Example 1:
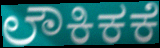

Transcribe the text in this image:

ಲೌಕಿಕಕೆ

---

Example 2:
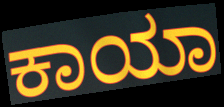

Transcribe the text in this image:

ಕಾಯಾ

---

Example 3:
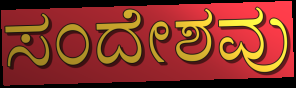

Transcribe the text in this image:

ಸಂದೇಶವು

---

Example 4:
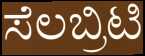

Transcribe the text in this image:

ಸೆಲಬ್ರಿಟಿ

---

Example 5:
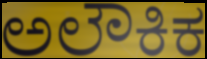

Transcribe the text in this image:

ಅಲೌಕಿಕ